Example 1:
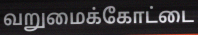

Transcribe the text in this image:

வறுமைக்கோட்டை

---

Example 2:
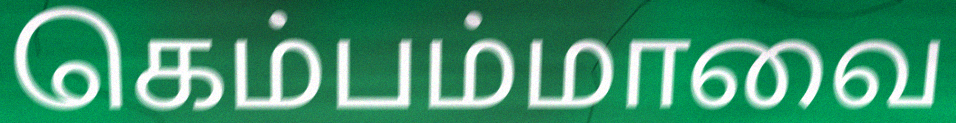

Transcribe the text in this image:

கெம்பம்மாவை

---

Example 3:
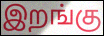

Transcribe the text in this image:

இறங்கு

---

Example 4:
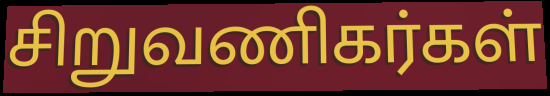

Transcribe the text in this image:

சிறுவணிகர்கள்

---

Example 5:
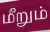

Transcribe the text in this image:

மீறும்